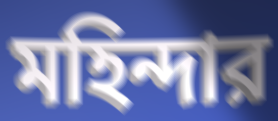
মহিন্দার